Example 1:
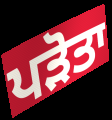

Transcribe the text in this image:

ਪੜੋਤਾ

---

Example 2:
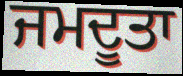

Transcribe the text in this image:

ਜਮਦੂਤਾ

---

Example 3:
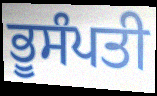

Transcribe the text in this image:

ਭੂਸੰਪਤੀ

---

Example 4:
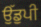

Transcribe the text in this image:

ਉੱਡੁਪੀ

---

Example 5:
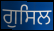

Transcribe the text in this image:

ਗੁਸਿਲ